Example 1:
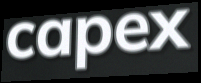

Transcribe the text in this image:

capex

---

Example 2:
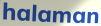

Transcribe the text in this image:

halaman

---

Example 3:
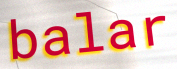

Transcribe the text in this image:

balar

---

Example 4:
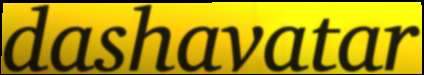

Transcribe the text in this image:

dashavatar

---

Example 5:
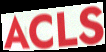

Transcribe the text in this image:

ACLS